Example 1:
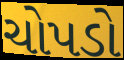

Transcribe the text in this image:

ચોપડો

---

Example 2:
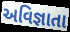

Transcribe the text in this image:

અવિજ્ઞાતા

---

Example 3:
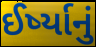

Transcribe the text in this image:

ઈર્ષ્યાનું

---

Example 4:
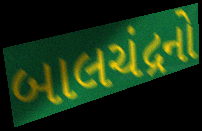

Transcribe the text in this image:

બાલચંદ્રનો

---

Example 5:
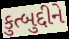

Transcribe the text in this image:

કુત્બુદ્દીને